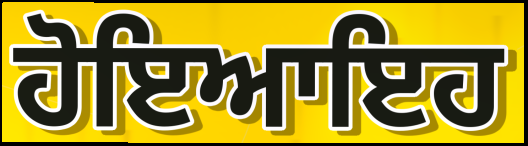
ਹੋਇਆਇਹ